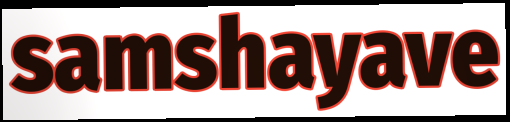
samshayave